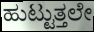
ಹುಟ್ಟುತ್ತಲೇ